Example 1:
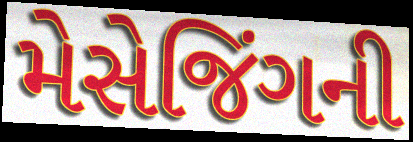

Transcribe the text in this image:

મેસેજિંગની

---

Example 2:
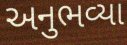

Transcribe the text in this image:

અનુભવ્યા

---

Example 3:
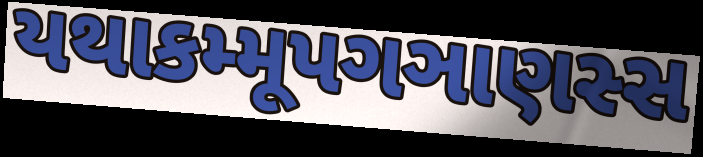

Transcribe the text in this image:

યથાકમ્મૂપગઞાણસ્સ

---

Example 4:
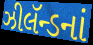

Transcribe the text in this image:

ઝીલૅન્ડનાં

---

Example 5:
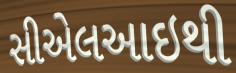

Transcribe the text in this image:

સીએલઆઇથી